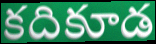
కదికూడ